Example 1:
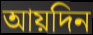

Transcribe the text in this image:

আয়দিন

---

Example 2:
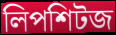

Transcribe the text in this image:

লিপশিটজ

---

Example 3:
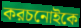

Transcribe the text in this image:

করচনোইকে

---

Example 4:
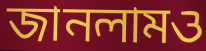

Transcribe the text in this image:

জানলামও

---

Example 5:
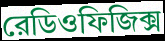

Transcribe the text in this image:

রেডিওফিজিক্স